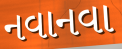
નવાનવા